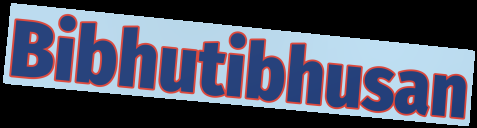
Bibhutibhusan